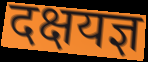
दक्षयज्ञ